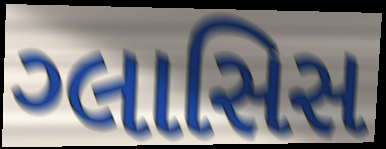
ગ્લાસિસ